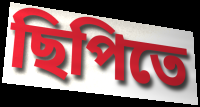
ছিপিতে